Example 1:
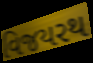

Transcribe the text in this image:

વિજયરથ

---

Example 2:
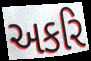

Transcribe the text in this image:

અકરિ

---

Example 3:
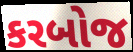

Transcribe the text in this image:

કરબોજ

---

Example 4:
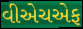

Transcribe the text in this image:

વીએચએફ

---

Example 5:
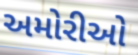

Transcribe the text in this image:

અમોરીઓ